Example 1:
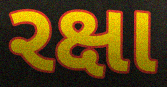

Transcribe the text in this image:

રક્ષા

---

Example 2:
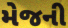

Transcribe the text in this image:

મેજની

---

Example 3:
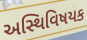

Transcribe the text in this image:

અસ્થિવિષયક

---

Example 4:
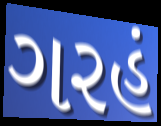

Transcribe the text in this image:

ગરહં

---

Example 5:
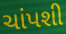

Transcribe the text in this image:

ચાંપશી